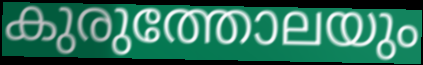
കുരുത്തോലയും